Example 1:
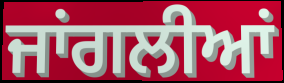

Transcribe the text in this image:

ਜਾਂਗਲੀਆਂ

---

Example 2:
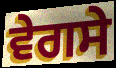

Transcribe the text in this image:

ਵੇਗਸੇ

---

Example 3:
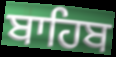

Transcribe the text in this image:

ਬਾਹਿਬ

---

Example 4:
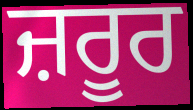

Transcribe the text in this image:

ਜ਼ਰੂਰ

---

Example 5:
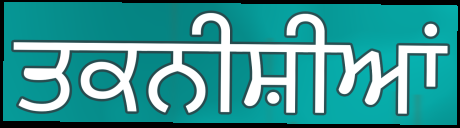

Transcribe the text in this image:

ਤਕਨੀਸ਼ੀਆਂ